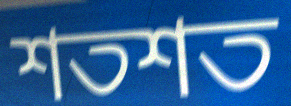
শতশত